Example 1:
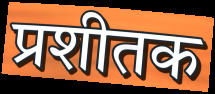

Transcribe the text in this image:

प्रशीतक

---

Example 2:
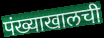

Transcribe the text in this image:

पंख्याखालची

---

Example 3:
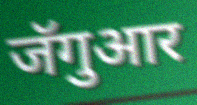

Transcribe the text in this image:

जॅगुआर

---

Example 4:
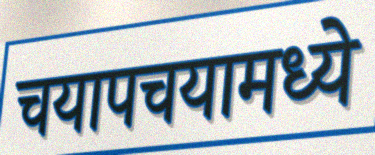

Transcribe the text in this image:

चयापचयामध्ये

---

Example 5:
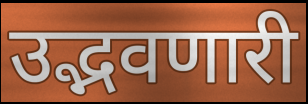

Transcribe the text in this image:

उद्भवणारी